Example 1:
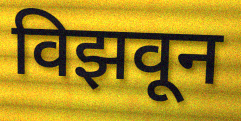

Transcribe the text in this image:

विझवून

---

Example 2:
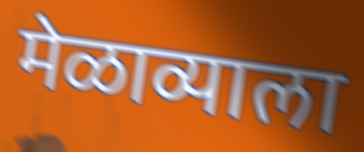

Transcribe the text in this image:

मेळाव्याला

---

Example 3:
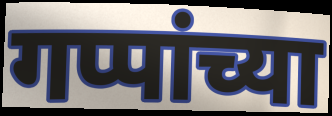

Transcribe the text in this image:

गप्पांच्या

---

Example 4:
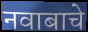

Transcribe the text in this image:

नवाबाचे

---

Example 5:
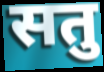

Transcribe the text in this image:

सतु